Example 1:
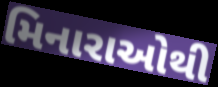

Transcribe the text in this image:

મિનારાઓથી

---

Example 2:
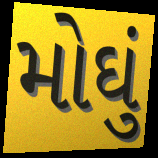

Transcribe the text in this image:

મોઘું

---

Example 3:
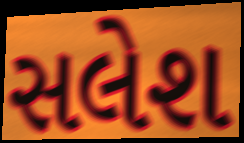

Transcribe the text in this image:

સલેશ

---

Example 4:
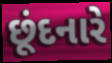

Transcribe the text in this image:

છૂંદનારે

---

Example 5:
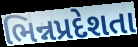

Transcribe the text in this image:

ભિન્નપ્રદેશતા